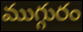
ముగ్గురం